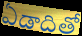
ఏడాదితో